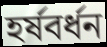
হর্ষবর্ধন